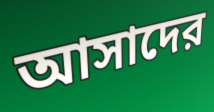
আসাদের